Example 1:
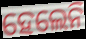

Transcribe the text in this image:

ହେଲେନି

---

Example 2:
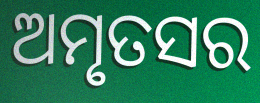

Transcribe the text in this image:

ଅମୃତସର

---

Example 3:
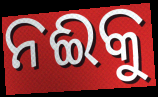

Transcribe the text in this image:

ନଈକୁ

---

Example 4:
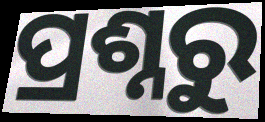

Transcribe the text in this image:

ପ୍ରଶ୍ନରୁ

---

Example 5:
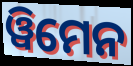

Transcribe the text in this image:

ୱିମେନ